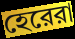
হেরেরা